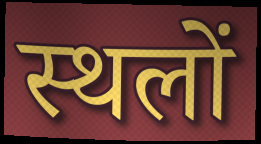
स्थलों